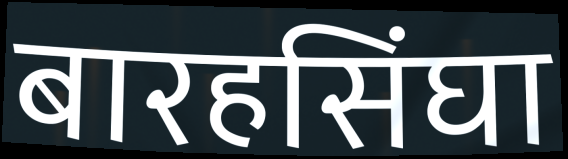
बारहसिंघा